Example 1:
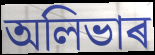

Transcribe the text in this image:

অলিভাৰ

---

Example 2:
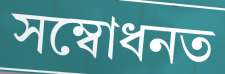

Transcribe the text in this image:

সম্বোধনত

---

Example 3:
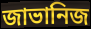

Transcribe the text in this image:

জাভানিজ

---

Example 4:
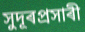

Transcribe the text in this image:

সুদূৰপ্ৰসাৰী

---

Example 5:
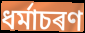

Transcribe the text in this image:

ধৰ্মাচৰণ